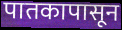
पातकापासून